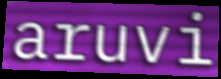
aruvi